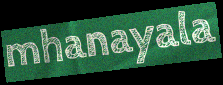
mhanayala